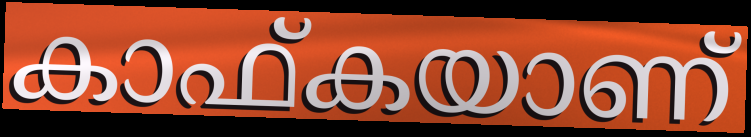
കാഫ്കയാണ്